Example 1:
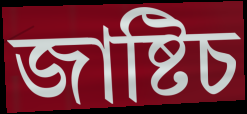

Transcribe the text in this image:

জাষ্টিচ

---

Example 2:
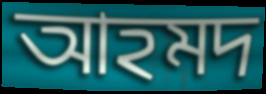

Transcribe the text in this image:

আহমদ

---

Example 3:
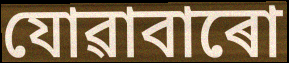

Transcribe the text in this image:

যোৱাবাৰো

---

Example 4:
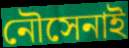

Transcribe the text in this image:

নৌসেনাই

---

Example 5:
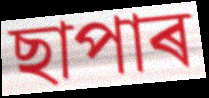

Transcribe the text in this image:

ছাপাৰ